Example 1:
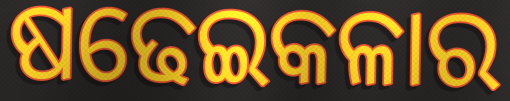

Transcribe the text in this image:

ଷଢେଇକଳାର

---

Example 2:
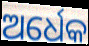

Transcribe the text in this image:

ଅର୍ଧେକ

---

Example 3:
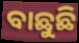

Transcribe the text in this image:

ବାଛୁଛି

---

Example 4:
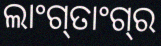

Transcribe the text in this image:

ଲାଂଗ୍‍ତାଂଗ୍‍ର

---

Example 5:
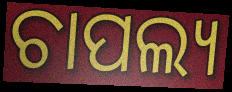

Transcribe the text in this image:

ଚାପଲ୍ୟ